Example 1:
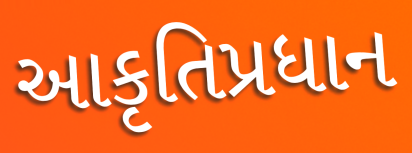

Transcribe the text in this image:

આકૃતિપ્રધાન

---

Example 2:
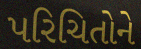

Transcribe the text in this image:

પરિચિતોને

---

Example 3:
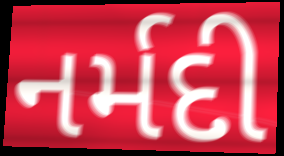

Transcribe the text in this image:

નર્મદી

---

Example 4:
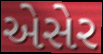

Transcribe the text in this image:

એસેર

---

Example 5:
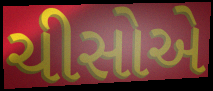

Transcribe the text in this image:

ચીસોએ